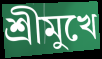
শ্রীমুখে